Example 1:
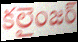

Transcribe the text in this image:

కలైంజర్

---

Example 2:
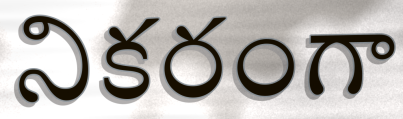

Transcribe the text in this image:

నికరంగా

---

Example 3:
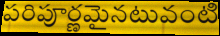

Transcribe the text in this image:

పరిపూర్ణమైనటువంటి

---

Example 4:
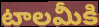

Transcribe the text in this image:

టాలమీకి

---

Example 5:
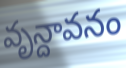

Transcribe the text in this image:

వృన్దావనం